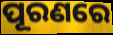
ପୂରଣରେ